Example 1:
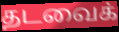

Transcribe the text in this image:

தடவைக்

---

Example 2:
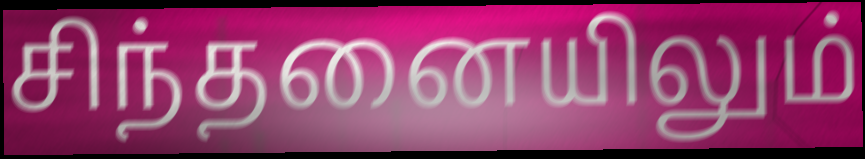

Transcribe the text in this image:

சிந்தனையிலும்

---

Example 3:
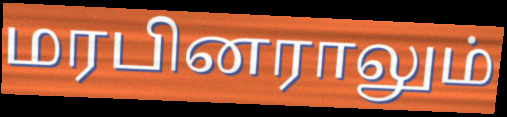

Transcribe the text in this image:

மரபினராலும்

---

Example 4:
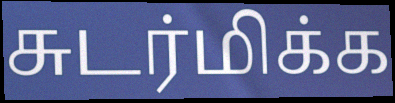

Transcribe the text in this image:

சுடர்மிக்க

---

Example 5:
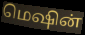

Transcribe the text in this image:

மெஷின்